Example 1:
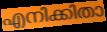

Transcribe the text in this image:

എനിക്കിതാ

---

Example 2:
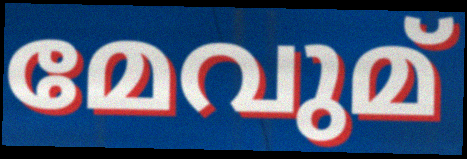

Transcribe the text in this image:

മേവുമ്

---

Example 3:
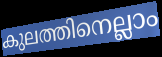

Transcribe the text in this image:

കുലത്തിനെല്ലാം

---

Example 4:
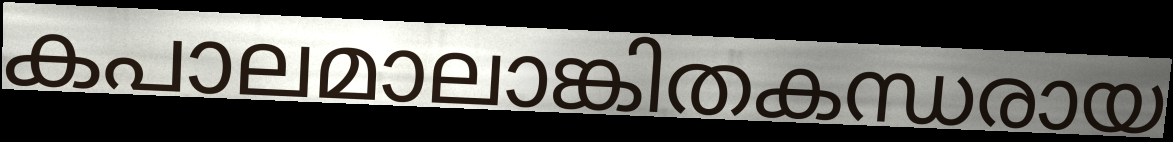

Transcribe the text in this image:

കപാലമാലാങ്കിതകന്ധരായ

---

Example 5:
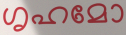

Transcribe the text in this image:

ഗൃഹമോ